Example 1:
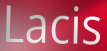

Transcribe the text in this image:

Lacis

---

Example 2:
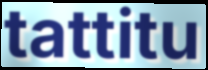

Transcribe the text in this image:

tattitu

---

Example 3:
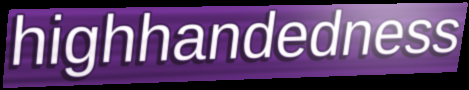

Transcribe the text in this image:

highhandedness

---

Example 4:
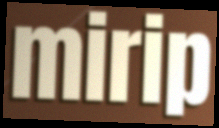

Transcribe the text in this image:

mirip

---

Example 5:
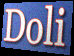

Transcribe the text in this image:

Doli